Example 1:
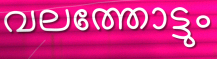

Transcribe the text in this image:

വലത്തോട്ടും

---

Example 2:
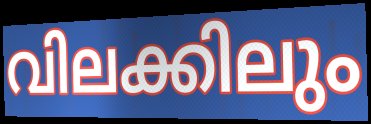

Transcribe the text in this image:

വിലക്കിലും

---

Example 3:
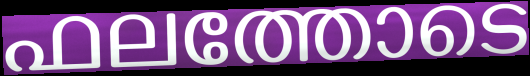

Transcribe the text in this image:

ഫലത്തോടെ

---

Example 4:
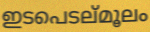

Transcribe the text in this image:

ഇടപെടല്മൂലം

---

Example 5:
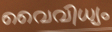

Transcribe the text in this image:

വൈവിധ്യം